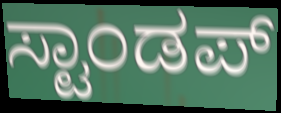
ಸ್ಟಾಂಡಪ್